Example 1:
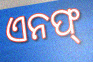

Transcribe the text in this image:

ଏନଫ୍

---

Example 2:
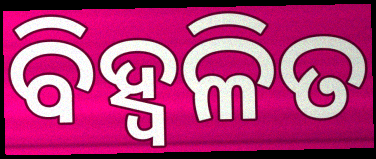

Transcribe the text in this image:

ବିହ୍ୱଳିତ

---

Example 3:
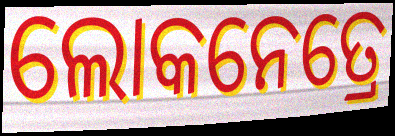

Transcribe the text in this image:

ଲୋକନେତ୍ରେ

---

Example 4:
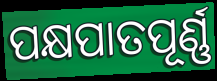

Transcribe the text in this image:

ପକ୍ଷପାତପୂର୍ଣ୍ଣ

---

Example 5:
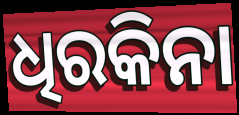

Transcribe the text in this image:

ଧିରକିନା